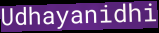
Udhayanidhi